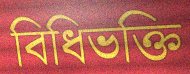
বিধিভক্তি